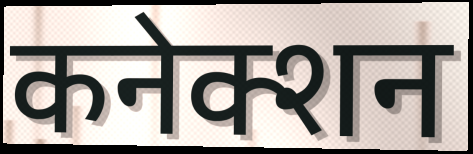
कनेक्शन